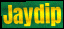
Jaydip